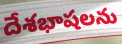
దేశభాషలను